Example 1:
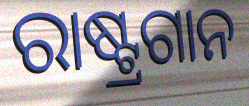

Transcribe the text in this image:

ରାଷ୍ଟ୍ରଗାନ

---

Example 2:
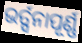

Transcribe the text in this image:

ଭର୍ତ୍ସନାପୂର୍ଣ୍ଣ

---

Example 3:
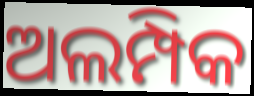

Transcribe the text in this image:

ଅଲମ୍ପିକ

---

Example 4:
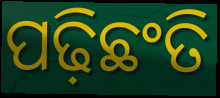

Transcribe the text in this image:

ପଢ଼ିଛଂତି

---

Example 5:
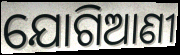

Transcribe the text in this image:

ଯୋଗିଆଣୀ